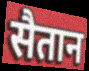
सैतान